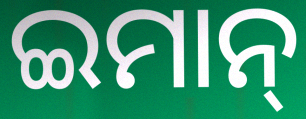
ଇମାନ୍